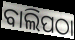
ବାଲିପଠା